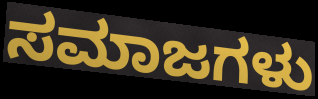
ಸಮಾಜಗಳು